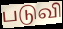
படுவி